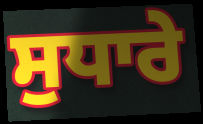
ਸੁਧਾਰੇ